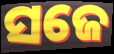
ସଜେ